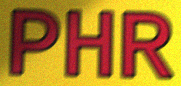
PHR